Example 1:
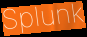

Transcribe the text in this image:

Splunk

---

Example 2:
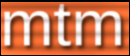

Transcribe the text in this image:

mtm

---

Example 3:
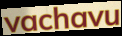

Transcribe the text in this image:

vachavu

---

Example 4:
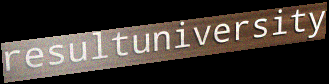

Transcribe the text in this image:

resultuniversity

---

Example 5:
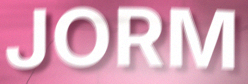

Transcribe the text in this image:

JORM